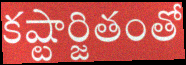
కష్టార్జితంతో